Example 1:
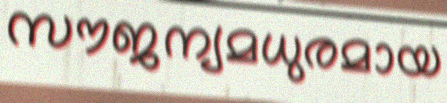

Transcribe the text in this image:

സൗജന്യമധുരമായ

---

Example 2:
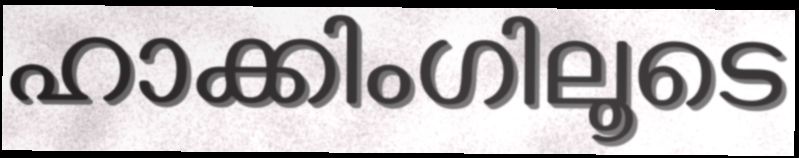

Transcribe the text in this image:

ഹാക്കിംഗിലൂടെ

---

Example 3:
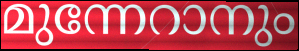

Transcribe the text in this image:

മുന്നേറാനും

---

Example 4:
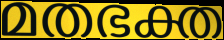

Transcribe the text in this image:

മതഭക്ത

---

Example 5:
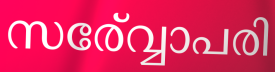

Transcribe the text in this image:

സര്വ്വോപരി